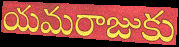
యమరాజుకు